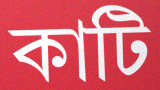
কাটি